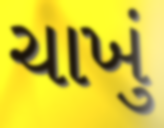
ચાખું